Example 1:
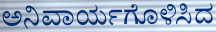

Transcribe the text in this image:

ಅನಿವಾರ್ಯಗೊಳಿಸಿದ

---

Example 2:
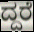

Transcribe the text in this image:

ದ್ದರೆ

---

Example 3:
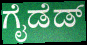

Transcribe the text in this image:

ಗೈಡೆಡ್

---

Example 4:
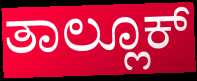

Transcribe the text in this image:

ತಾಲ್ಲೂಕ್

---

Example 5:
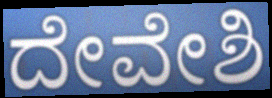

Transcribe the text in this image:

ದೇವೇಶಿ